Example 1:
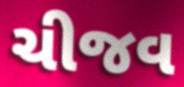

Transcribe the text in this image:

ચીજવ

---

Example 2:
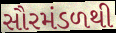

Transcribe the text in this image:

સૌરમંડળથી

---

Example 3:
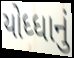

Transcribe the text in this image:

યોધ્ધાનું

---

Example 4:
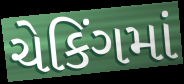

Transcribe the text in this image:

ચેકિંગમાં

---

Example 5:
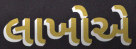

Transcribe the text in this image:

લાખોએ